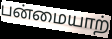
பன்மையாற்